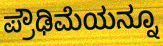
ಪ್ರೌಢಿಮೆಯನ್ನೂ